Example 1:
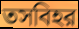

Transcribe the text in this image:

তসবিহর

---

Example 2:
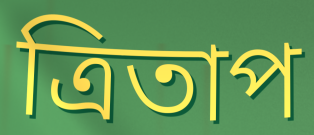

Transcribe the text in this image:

ত্রিতাপ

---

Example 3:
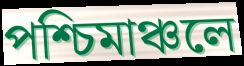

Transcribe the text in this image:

পশ্চিমাঞ্চলে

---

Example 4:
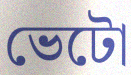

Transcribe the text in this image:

ভেটো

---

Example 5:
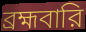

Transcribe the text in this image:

ব্রহ্মবারি